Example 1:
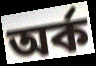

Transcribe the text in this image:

অর্ক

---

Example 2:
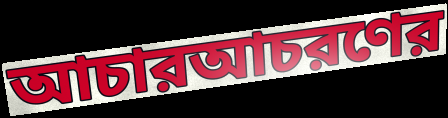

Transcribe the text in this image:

আচারআচরণের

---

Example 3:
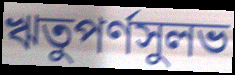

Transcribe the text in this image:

ঋতুপর্ণসুলভ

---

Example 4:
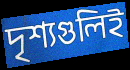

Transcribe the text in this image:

দৃশ্যগুলিই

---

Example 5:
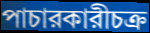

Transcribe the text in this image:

পাচারকারীচক্র